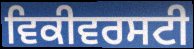
ਵਿਕੀਵਰਸਟੀ